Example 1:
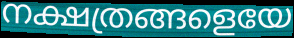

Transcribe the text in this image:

നക്ഷത്രങ്ങളെയേ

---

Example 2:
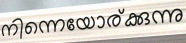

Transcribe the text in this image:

നിന്നെയോര്ക്കുന്നു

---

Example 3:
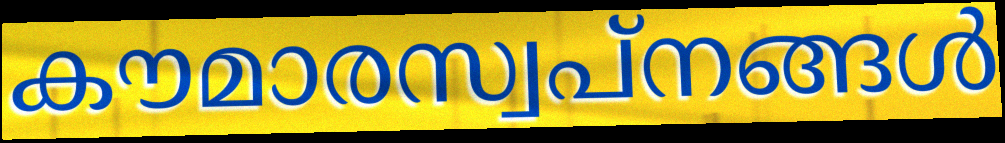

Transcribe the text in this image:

കൗമാരസ്വപ്നങ്ങൾ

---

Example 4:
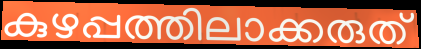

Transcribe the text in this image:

കുഴപ്പത്തിലാക്കരുത്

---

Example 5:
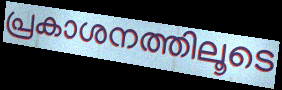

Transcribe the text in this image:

പ്രകാശനത്തിലൂടെ